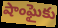
షాంఘైకు